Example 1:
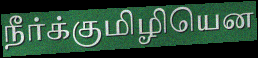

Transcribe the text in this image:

நீர்க்குமிழியென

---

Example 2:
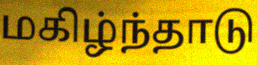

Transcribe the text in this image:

மகிழ்ந்தாடு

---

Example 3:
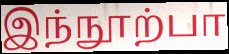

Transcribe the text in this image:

இந்நூற்பா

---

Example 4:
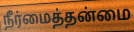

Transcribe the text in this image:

நீர்மைத்தன்மை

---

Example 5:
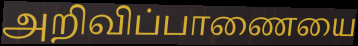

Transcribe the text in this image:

அறிவிப்பாணையை